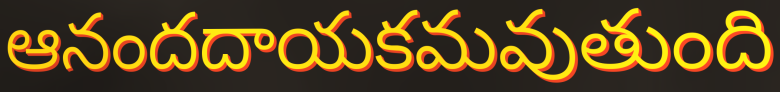
ఆనందదాయకమవుతుంది